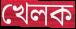
খেলক